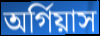
অর্গিয়াস